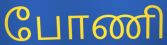
போணி